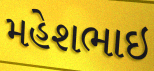
મહેશભાઇ